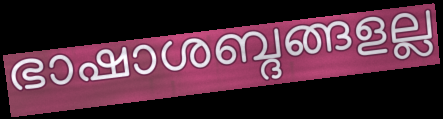
ഭാഷാശബ്ദങ്ങളല്ല